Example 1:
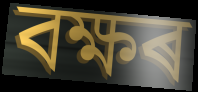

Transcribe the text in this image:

বক্ষৰ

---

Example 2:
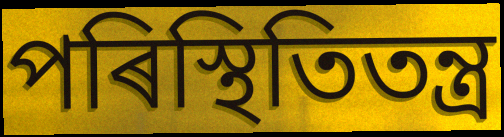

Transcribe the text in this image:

পৰিস্থিতিতন্ত্ৰ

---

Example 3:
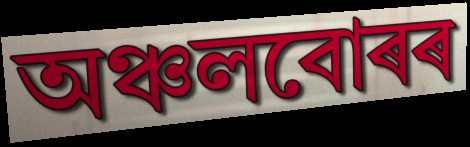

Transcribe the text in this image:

অঞ্চলবোৰৰ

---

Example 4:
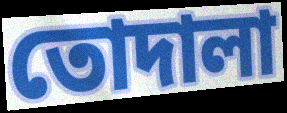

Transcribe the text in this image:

তোদালা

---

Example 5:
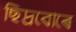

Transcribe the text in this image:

ছিদ্ৰবোৰে